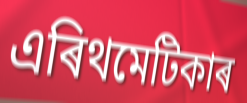
এৰিথমেটিকাৰ